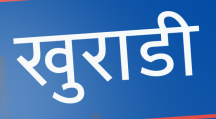
खुराडी